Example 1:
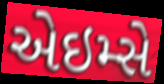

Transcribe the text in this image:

એઇમ્સે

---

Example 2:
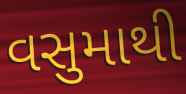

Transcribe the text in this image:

વસુમાથી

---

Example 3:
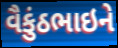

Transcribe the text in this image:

વૈકુંઠભાઇને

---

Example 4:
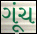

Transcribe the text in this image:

ગૂંચ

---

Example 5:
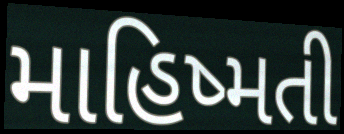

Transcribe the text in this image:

માહિષ્મતી